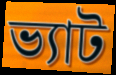
ভ্যাট